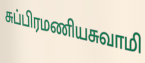
சுப்பிரமணியசுவாமி